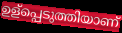
ഉള്പ്പെടുത്തിയാണ്